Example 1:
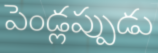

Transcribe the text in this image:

పెండ్లప్పుడు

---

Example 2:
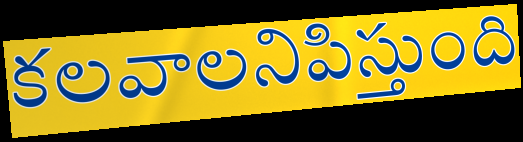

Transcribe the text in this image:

కలవాలనిపిస్తుంది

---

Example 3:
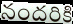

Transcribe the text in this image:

నందరికి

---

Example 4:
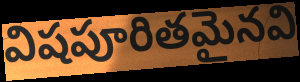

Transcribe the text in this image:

విషపూరితమైనవి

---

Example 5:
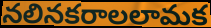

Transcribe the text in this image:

నలినకరాలలామక